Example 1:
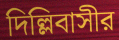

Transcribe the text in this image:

দিল্লিবাসীর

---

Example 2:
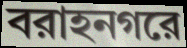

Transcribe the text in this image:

বরাহনগরে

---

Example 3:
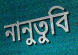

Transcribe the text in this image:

নানুতুবি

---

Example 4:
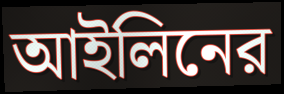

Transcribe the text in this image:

আইলিনের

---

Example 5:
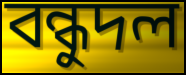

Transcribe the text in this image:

বন্ধুদল